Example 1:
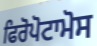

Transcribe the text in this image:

ਫਿਰੋਪੋਟਾਮੋਸ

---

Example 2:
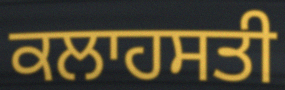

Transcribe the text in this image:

ਕਲਾਹਸਤੀ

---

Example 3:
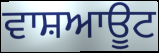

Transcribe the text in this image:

ਵਾਸ਼ਆਊਟ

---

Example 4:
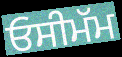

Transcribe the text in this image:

ਓਸੀਮੱਮ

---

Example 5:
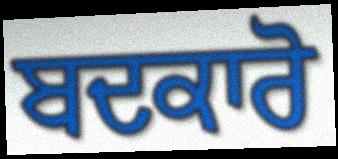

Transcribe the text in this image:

ਬਦਕਾਰੋ